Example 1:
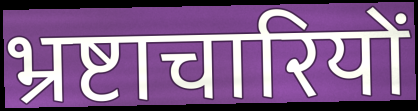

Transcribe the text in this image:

भ्रष्टाचारियों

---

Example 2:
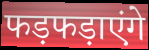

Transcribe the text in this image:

फड़फड़ाएंगे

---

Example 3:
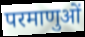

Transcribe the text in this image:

परमाणुओं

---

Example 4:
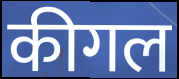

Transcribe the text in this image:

कीगल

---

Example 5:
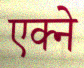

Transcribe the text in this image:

एक्ने